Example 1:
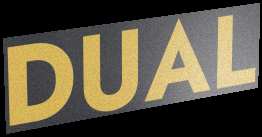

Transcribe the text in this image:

DUAL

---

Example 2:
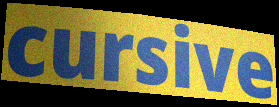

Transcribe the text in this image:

cursive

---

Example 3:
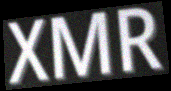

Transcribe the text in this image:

XMR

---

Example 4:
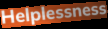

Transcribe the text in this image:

Helplessness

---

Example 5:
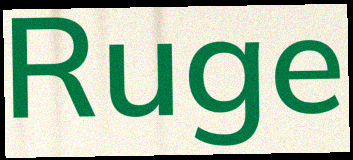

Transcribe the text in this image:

Ruge